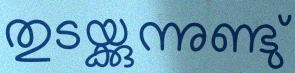
തുടയ്ക്കുന്നുണ്ടു്